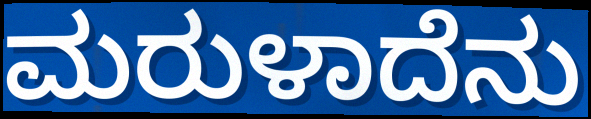
ಮರುಳಾದೆನು